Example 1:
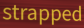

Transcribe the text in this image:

strapped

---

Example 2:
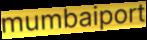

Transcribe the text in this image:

mumbaiport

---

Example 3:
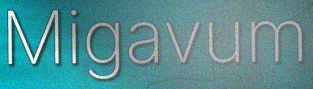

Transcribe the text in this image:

Migavum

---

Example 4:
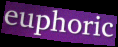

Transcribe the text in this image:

euphoric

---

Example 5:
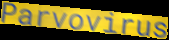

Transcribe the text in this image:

Parvovirus